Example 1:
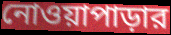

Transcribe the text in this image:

নোওয়াপাড়ার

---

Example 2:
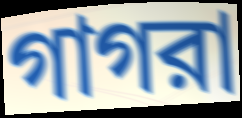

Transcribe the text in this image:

গাগরা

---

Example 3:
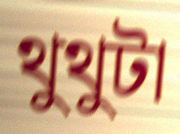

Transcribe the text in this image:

থুথুটা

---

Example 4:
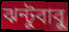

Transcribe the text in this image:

ঝন্টুবাবু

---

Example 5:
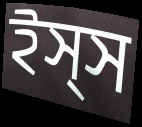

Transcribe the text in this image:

ইস্‌স